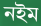
নইম